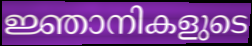
ജ്ഞാനികളുടെ